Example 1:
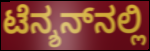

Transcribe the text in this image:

ಟೆನ್ಶನ್‌ನಲ್ಲಿ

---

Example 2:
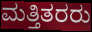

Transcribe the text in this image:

ಮತ್ತಿತರರು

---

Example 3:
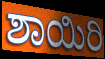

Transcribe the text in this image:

ಶಾಯಿರಿ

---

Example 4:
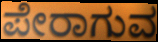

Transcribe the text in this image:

ಪೇರಾಗುವ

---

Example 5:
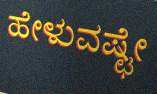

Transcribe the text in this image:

ಹೇಳುವಷ್ಟೇ